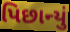
પિછાન્યું